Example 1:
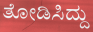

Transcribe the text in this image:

ತೋಡಿಸಿದ್ದು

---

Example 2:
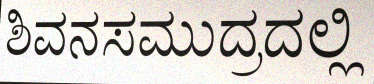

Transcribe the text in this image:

ಶಿವನಸಮುದ್ರದಲ್ಲಿ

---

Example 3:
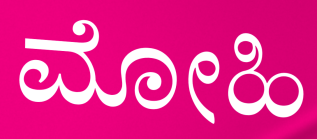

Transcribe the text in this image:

ಮೋಹಿ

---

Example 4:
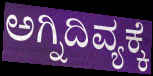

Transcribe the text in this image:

ಅಗ್ನಿದಿವ್ಯಕ್ಕೆ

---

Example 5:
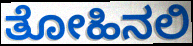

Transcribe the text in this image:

ತೋಹಿನಲಿ